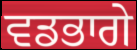
ਵਡਭਾਗੇ